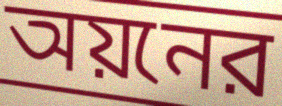
অয়নের